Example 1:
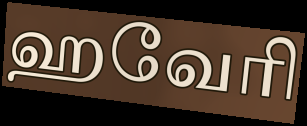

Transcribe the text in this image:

ஹவேரி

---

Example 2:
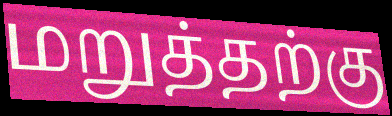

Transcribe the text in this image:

மறுத்தற்கு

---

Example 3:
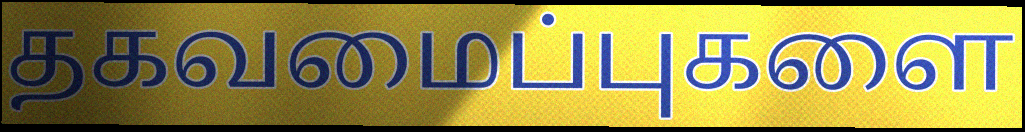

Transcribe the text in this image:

தகவமைப்புகளை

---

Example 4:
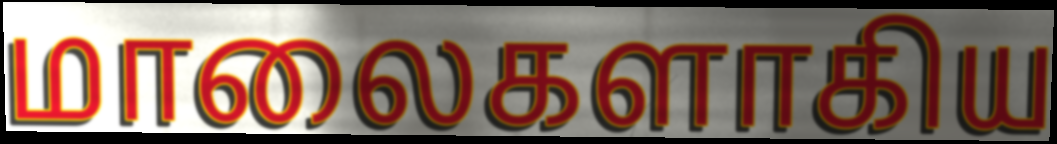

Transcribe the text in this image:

மாலைகளாகிய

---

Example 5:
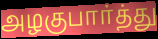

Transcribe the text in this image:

அழகுபார்த்து